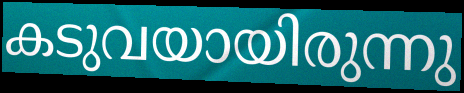
കടുവയായിരുന്നു